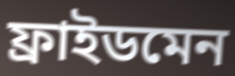
ফ্ৰাইডমেন